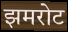
झमरोट